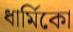
ধার্মিকো